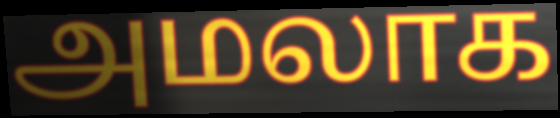
அமலாக